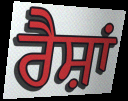
ਰੈਸ਼ਾਂ